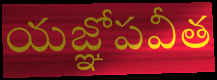
యజ్ఞోపవీత